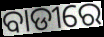
ବାଡୀରେ